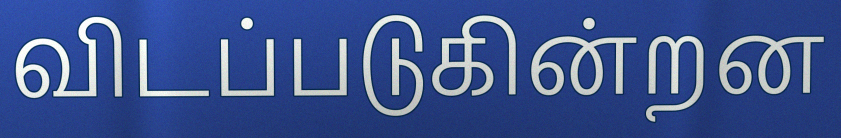
விடப்படுகின்றன